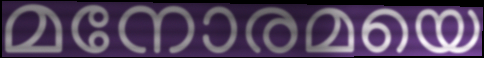
മനോരമയെ